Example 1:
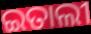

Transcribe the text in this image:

ଇତାଲୀ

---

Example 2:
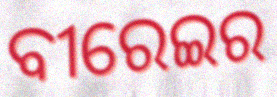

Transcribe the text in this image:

ବୀରେଇର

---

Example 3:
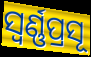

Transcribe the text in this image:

ସ୍ଵର୍ଣ୍ଣପ୍ରସୂ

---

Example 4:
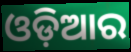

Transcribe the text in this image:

ଓଡ଼ିଆର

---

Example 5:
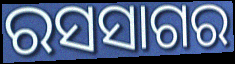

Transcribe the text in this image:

ରସସାଗର